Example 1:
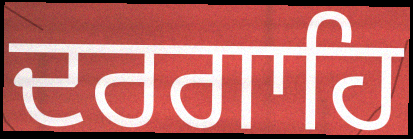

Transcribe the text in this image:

ਦਰਗਾਹਿ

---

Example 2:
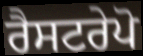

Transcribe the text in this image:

ਰੈਸਟਰੇਪੋ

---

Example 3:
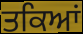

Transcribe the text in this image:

ਤਕਿਆਂ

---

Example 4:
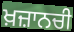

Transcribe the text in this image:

ਖ਼ਜ਼ਾਨਚੀ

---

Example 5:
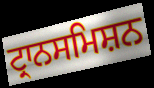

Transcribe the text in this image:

ਟ੍ਰਾਨਸਮਿਸ਼ਨ